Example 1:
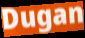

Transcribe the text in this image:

Dugan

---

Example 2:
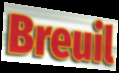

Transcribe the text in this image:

Breuil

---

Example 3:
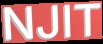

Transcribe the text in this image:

NJIT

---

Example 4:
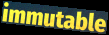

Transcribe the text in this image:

immutable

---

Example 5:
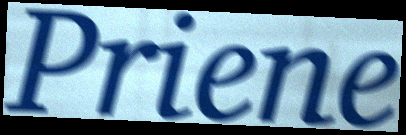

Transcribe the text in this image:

Priene